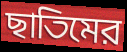
ছাতিমের